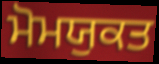
ਮੋਮਯੁਕਤ